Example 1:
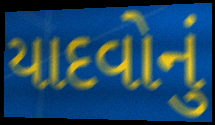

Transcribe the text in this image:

યાદવોનું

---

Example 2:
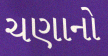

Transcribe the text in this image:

ચણાનો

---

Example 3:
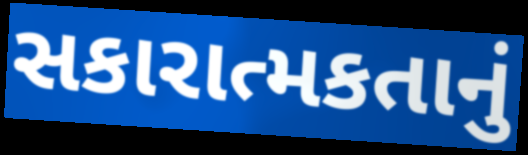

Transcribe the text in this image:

સકારાત્મકતાનું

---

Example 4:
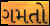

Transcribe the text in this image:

ગમતો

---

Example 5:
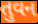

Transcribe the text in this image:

તુવન